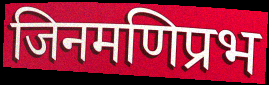
जिनमणिप्रभ